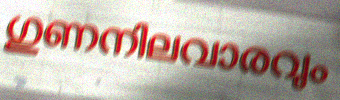
ഗുണനിലവാരവും